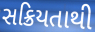
સક્રિયતાથી